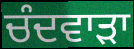
ਚੰਦਵਾੜਾ